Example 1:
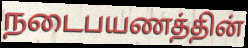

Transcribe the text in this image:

நடைபயணத்தின்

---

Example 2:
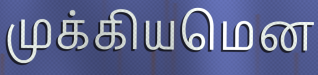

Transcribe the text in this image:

முக்கியமென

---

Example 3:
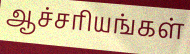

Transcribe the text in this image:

ஆச்சரியங்கள்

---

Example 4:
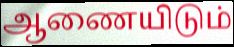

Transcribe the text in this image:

ஆணையிடும்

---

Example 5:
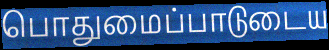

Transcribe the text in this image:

பொதுமைப்பாடுடைய